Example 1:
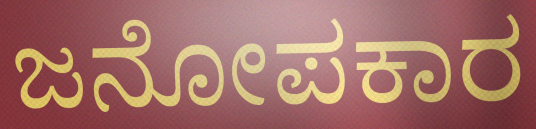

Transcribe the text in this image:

ಜನೋಪಕಾರ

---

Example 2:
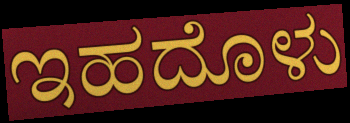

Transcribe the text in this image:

ಇಹದೊಳು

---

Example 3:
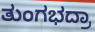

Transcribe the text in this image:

ತುಂಗಭದ್ರಾ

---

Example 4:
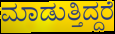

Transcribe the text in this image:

ಮಾಡುತ್ತಿದ್ದರೆ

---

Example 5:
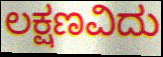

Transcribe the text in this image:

ಲಕ್ಷಣವಿದು